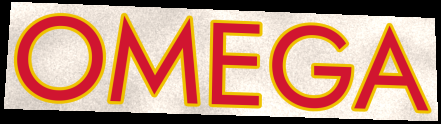
OMEGA